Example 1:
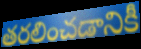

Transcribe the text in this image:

తరలించడానికీ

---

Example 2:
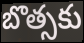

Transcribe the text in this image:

బొత్సకు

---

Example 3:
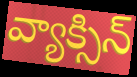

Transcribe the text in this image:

వ్యాక్సిన్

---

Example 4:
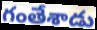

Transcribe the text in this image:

గంతేశాడు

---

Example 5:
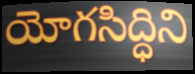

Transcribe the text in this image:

యోగసిద్ధిని